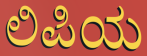
ಲಿಪಿಯ